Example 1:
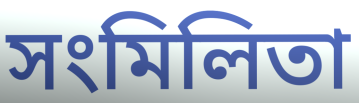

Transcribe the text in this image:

সংমিলিতা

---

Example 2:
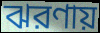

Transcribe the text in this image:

ঝরণায়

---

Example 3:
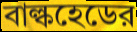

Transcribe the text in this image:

বাল্কহেডের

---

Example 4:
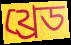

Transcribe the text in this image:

থ্রেড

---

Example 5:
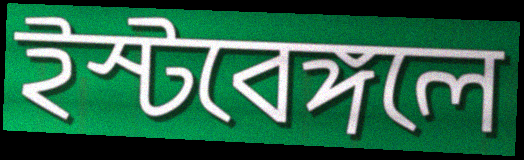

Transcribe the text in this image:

ইস্টবেঙ্গলে